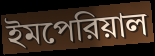
ইমপেরিয়াল